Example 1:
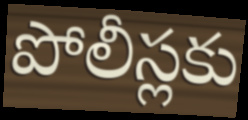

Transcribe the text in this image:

పోలీస్లకు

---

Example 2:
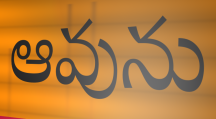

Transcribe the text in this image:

ఆవును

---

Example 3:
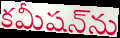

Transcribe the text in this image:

కమీషన్‌ను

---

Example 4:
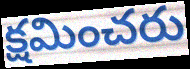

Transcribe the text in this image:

క్షమించరు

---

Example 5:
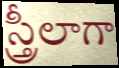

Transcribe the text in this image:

స్త్రీలాగా